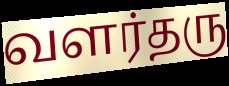
வளர்தரு